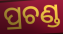
ପ୍ରଚଣ୍ଡ